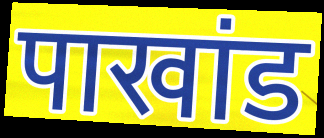
पाखांड